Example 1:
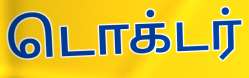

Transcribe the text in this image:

டொக்டர்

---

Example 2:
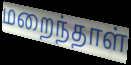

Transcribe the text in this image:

மறைந்தாள்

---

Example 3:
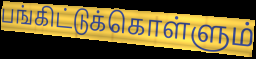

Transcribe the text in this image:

பங்கிட்டுக்கொள்ளும்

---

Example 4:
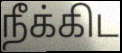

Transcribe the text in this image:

நீக்கிட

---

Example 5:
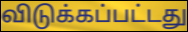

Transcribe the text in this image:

விடுக்கப்பட்டது